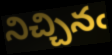
నిచ్చినఁ